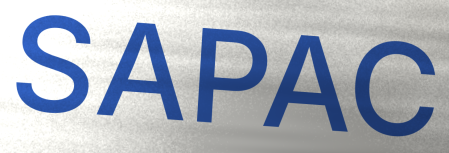
SAPAC